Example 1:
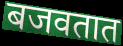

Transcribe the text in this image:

बजवतात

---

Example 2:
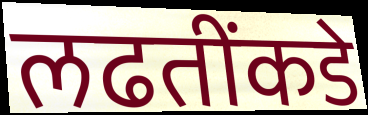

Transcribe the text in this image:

लढतींकडे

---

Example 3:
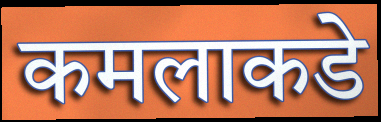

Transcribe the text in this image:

कमलाकडे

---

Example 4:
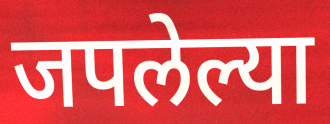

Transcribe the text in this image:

जपलेल्या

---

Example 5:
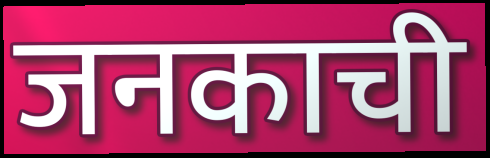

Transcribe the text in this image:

जनकाची